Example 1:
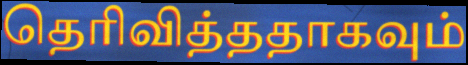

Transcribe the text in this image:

தெரிவித்ததாகவும்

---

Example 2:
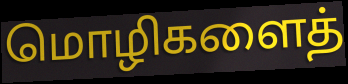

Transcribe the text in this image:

மொழிகளைத்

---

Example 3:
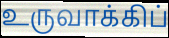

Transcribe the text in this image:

உருவாக்கிப்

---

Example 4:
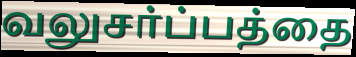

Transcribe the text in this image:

வலுசர்ப்பத்தை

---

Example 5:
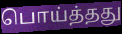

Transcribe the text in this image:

பொய்த்தது